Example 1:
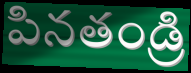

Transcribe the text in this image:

పినతండ్రి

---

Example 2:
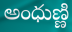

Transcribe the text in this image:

అంధుణ్ణి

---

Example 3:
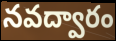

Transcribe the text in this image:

నవద్వారం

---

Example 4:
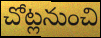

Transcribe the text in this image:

చోట్లనుంచి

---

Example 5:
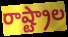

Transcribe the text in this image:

రాష్ట్రాల